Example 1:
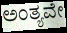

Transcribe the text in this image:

ಅಂತ್ಯವೇ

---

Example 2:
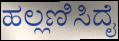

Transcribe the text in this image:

ಹಲ್ಲಣಿಸಿದೈ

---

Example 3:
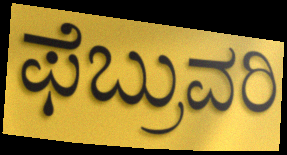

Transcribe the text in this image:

ಫೆಬ್ರುವರಿ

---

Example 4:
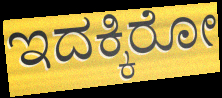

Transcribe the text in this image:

ಇದಕ್ಕಿರೋ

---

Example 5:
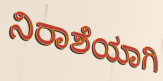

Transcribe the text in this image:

ನಿರಾಶೆಯಾಗಿ